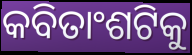
କବିତାଂଶଟିକୁ